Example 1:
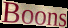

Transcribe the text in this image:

Boons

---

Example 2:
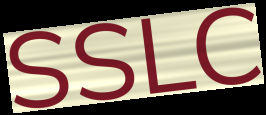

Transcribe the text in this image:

SSLC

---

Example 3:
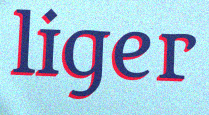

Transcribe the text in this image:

liger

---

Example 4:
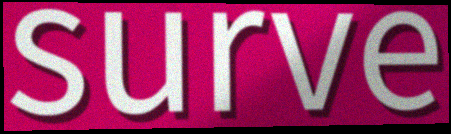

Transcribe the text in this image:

surve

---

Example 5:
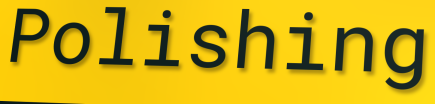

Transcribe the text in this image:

Polishing